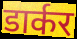
डार्कर